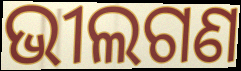
ଭୀଲଗଣ